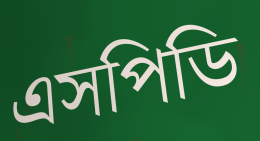
এসপিডি